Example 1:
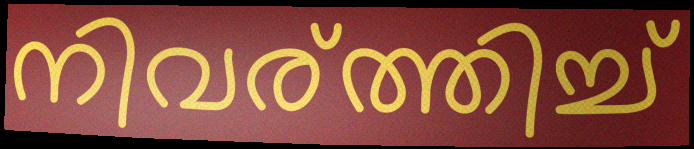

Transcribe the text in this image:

നിവര്ത്തിച്ച്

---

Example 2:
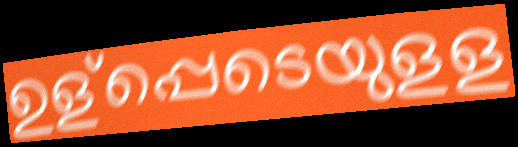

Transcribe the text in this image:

ഉള്പ്പെടെയുളള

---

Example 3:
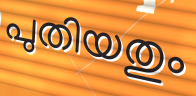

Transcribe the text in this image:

പുതിയതും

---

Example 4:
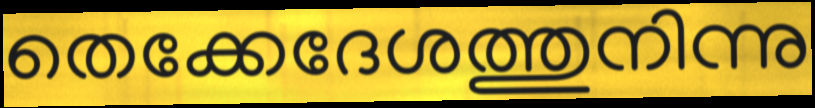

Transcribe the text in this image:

തെക്കേദേശത്തുനിന്നു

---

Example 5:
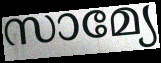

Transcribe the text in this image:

സാമ്യേ